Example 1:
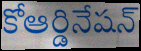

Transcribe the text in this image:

కోఆర్డినేషన్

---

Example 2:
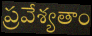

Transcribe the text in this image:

ప్రవేశ్యతాం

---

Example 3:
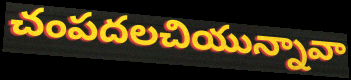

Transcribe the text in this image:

చంపదలచియున్నావా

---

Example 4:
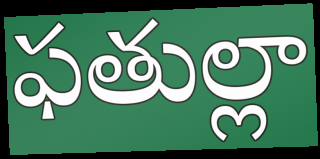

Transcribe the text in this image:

ఫతుల్లా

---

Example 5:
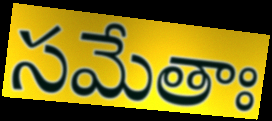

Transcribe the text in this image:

సమేతాః